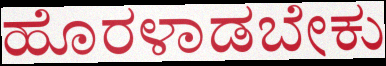
ಹೊರಳಾಡಬೇಕು